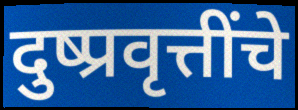
दुष्प्रवृत्तींचे